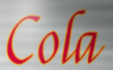
Cola